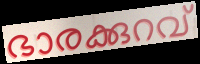
ഭാരക്കുറവ്